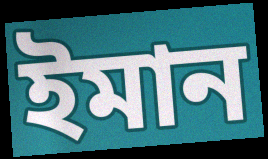
ইমান